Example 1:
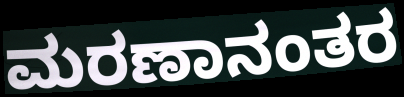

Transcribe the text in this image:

ಮರಣಾನಂತರ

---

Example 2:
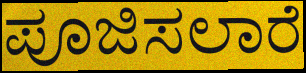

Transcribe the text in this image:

ಪೂಜಿಸಲಾರೆ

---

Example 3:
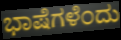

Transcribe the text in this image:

ಭಾಷೆಗಳೆಂದು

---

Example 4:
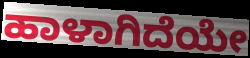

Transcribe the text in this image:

ಹಾಳಾಗಿದೆಯೇ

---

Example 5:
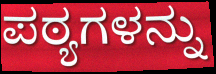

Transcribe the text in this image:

ಪಠ್ಯಗಳನ್ನು